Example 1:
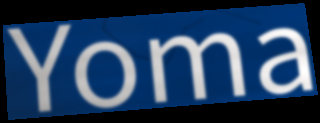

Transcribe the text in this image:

Yoma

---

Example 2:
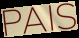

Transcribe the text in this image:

PAIS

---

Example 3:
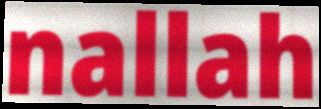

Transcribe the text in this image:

nallah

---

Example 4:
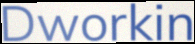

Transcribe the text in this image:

Dworkin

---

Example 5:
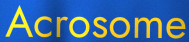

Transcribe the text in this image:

Acrosome